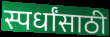
स्पर्धांसाठी